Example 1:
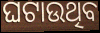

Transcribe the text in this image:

ଘଟାଉଥିବ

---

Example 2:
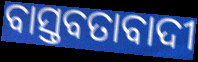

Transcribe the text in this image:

ବାସ୍ତବତାବାଦୀ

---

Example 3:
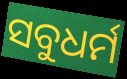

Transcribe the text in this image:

ସବୁଧର୍ମ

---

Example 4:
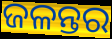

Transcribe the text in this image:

ଜଳନ୍ତର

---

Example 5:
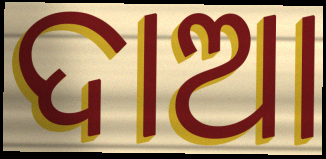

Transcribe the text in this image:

ଦାଆ